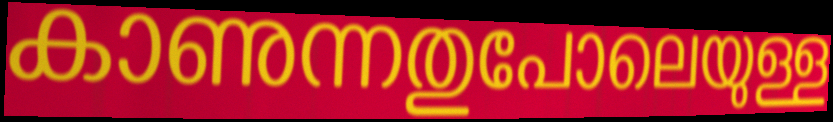
കാണുന്നതുപോലെയുള്ള